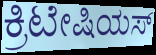
ಕ್ರಿಟೇಷಿಯಸ್